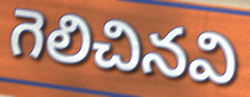
గెలిచినవి